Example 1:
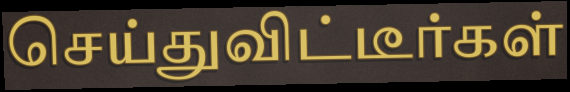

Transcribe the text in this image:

செய்துவிட்டீர்கள்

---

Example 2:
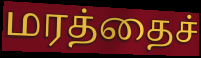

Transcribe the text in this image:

மரத்தைச்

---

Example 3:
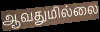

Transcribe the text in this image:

ஆவதுமில்லை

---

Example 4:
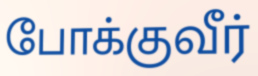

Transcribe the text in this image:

போக்குவீர்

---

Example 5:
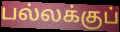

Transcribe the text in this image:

பல்லக்குப்